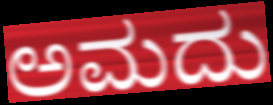
ಅಮದು